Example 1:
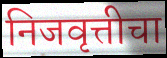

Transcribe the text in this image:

निजवृत्तीचा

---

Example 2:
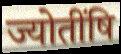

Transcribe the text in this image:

ज्योतींषि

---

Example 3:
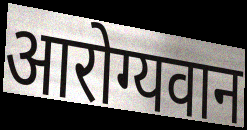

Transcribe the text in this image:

आरोग्यवान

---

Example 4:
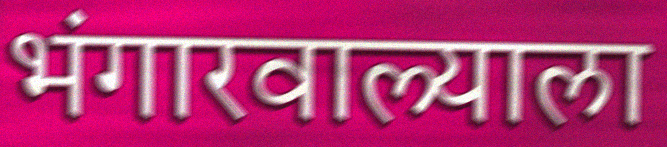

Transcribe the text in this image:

भंगारवाल्याला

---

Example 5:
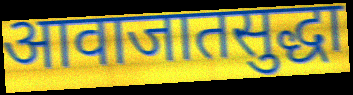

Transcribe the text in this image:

आवाजातसुद्धा